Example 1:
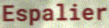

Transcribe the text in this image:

Espalier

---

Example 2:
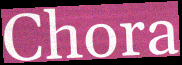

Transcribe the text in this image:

Chora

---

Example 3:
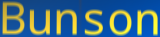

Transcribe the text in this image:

Bunson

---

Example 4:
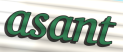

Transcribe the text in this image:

asant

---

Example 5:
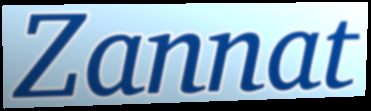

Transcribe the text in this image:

Zannat